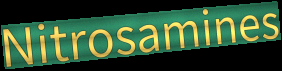
Nitrosamines